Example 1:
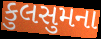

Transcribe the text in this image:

કુલસુમના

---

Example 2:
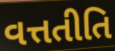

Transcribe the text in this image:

વત્તતીતિ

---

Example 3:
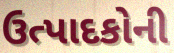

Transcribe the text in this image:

ઉત્પાદકોની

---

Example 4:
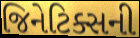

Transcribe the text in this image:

જિનેટિક્સની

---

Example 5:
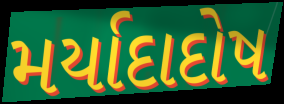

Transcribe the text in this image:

મર્યાદાદોષ